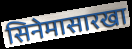
सिनेमासारखा